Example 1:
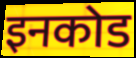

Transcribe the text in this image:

इनकोड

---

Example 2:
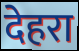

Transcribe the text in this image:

देहरा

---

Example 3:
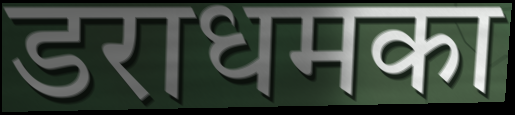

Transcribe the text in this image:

डराधमका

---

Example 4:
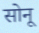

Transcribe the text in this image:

सोनू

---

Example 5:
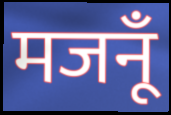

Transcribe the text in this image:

मजनूँ